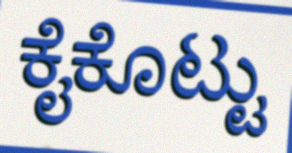
ಕೈಕೊಟ್ಟು